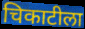
चिकाटीला